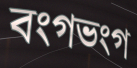
বংগভংগ